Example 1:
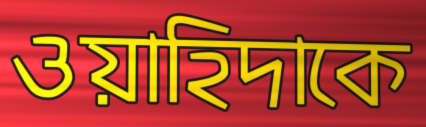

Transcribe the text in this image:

ওয়াহিদাকে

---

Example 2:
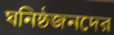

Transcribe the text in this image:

ঘনিষ্ঠজনদের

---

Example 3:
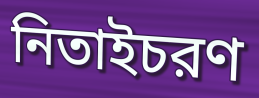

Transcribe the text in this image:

নিতাইচরণ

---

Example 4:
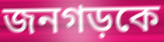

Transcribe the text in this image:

জনগড়কে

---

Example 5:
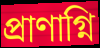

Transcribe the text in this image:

প্রাণাগ্নি